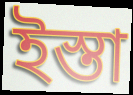
ইস্তা